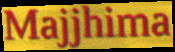
Majjhima